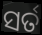
ସର୍ତ